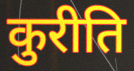
कुरीति